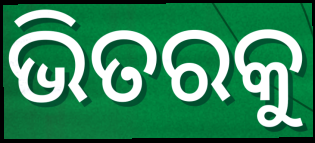
ଭିତରକୁ